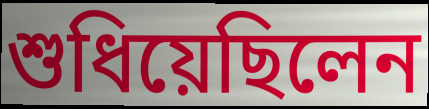
শুধিয়েছিলেন